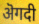
ऄगदी